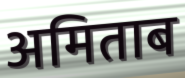
अमिताब